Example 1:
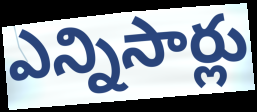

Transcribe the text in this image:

ఎన్నిసార్లు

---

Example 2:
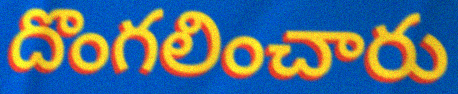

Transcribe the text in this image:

దొంగలించారు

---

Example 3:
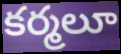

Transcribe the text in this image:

కర్మలూ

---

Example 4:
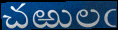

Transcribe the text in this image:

చఱులఁ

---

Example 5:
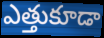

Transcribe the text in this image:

ఎత్తుకూడా